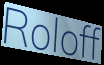
Roloff